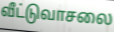
வீட்டுவாசலை